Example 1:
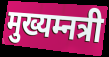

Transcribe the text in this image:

मुख्यम्नत्री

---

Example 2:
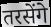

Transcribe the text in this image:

तरसेंगे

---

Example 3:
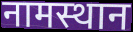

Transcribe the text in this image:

नामस्थान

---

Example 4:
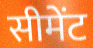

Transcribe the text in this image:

सीमेंट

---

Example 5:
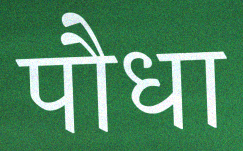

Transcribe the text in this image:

पौधा